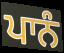
ਪਾਨੰ